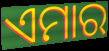
ଏମାର